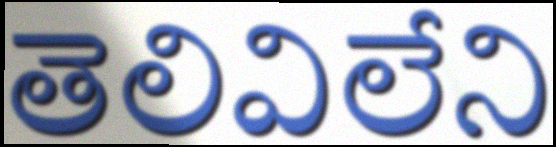
తెలివిలేని